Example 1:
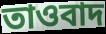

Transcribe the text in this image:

তাওবাদ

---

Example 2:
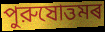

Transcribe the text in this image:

পুৰুষোত্তমৰ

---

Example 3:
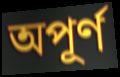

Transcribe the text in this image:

অপূৰ্ণ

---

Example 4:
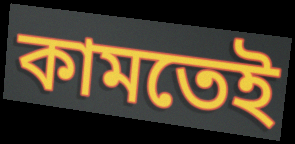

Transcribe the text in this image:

কামতেই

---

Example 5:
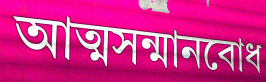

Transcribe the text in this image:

আত্মসন্মানবোধ